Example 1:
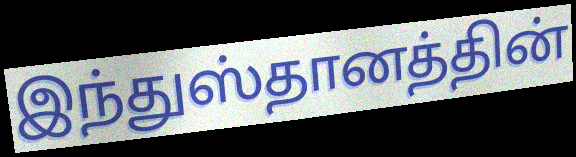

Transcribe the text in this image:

இந்துஸ்தானத்தின்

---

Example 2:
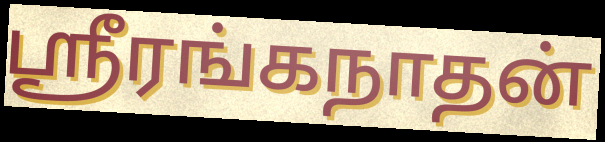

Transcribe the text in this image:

ஸ்ரீரங்கநாதன்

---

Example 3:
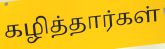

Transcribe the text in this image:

கழித்தார்கள்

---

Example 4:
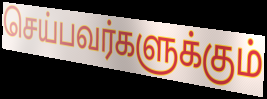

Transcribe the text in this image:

செய்பவர்களுக்கும்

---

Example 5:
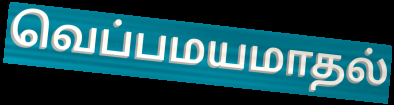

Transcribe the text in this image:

வெப்பமயமாதல்